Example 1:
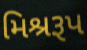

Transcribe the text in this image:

મિશ્રરૂપ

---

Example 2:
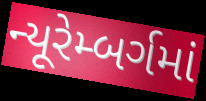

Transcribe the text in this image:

ન્યૂરેમ્બર્ગમાં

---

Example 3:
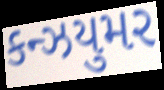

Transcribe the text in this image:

કન્ઝયુમર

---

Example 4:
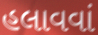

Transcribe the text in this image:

હલાવવાં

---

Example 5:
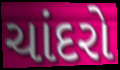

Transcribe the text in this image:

ચાંદરો